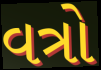
વત્રો